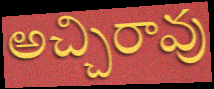
అచ్చిరావు